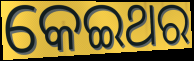
କେଇଥର